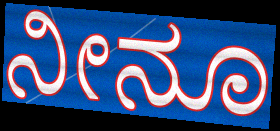
ನೀನೂ